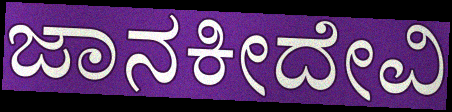
ಜಾನಕೀದೇವಿ